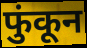
फुंकून